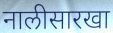
नालीसारखा